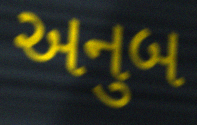
અનુબ